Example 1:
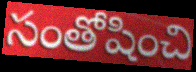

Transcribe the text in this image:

సంతోషించి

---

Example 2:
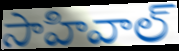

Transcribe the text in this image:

సాహివాల్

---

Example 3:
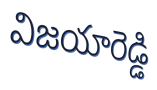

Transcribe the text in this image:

విజయారెడ్డి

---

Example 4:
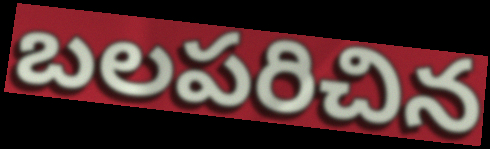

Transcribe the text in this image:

బలపరిచిన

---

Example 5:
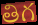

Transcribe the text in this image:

తిగ